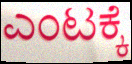
ಎಂಟಕ್ಕೆ